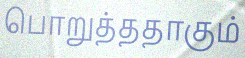
பொறுத்ததாகும்